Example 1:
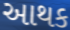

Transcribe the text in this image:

આથક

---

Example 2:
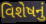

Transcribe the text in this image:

વિશેષનું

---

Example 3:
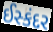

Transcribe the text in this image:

ઈસ્કંદર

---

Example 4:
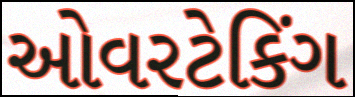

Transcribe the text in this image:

ઓવરટેકિંગ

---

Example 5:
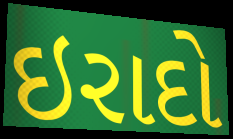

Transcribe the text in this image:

ઇરાદો